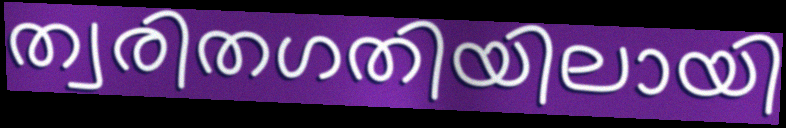
ത്വരിതഗതിയിലായി